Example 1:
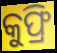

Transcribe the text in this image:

କୁଫ୍ରି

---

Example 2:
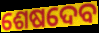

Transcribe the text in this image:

ଶେଷଦେବ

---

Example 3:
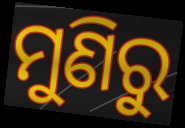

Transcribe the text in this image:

ମୁଣିରୁ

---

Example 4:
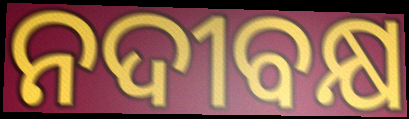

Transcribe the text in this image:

ନଦୀବକ୍ଷ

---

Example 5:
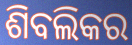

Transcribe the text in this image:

ଶିବଲିକର